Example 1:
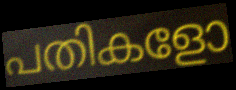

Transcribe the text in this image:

പതികളോ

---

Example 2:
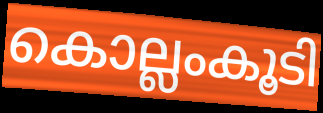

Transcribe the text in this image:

കൊല്ലംകൂടി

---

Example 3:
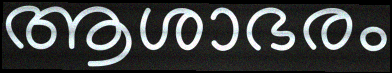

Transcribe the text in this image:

ആശാഭരം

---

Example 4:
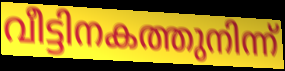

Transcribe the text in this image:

വീട്ടിനകത്തുനിന്ന്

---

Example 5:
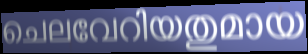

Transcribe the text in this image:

ചെലവേറിയതുമായ